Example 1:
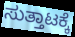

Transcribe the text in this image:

ಸುತ್ತಾಟಕ್ಕೆ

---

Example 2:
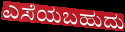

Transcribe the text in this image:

ಎಸೆಯಬಹುದು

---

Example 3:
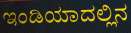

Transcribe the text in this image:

ಇಂಡಿಯಾದಲ್ಲಿನ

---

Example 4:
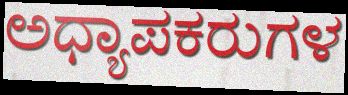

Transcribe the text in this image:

ಅಧ್ಯಾಪಕರುಗಳ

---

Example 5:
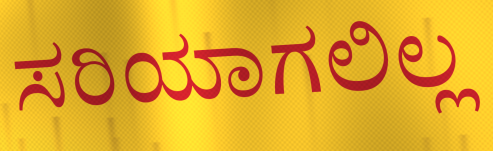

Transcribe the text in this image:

ಸರಿಯಾಗಲಿಲ್ಲ